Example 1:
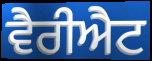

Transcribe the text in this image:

ਵੈਰੀਐਟ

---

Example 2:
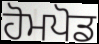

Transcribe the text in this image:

ਹੋਮਪੋਡ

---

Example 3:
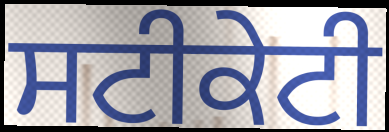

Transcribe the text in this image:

ਸਟੀਕੇਟੀ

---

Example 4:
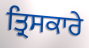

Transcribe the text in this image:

ਤ੍ਰਿਸਕਾਰੇ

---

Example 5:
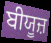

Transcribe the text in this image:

ਬੀਯੂਜ਼